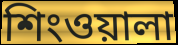
শিংওয়ালা